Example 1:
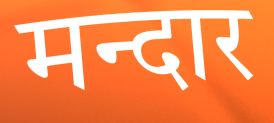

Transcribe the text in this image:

मन्दार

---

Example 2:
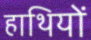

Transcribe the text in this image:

हाथियों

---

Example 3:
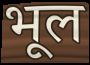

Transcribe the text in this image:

भूल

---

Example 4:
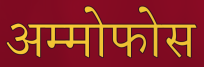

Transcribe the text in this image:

अम्मोफोस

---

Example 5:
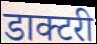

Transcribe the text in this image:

डाक्टरी